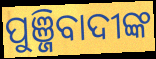
ପୁଞ୍ଜିବାଦୀଙ୍କ